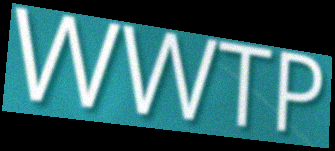
WWTP